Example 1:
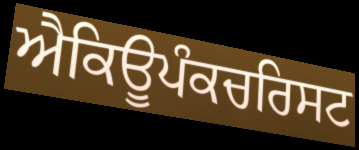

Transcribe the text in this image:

ਐਕਿਊਪੰਕਚਰਿਸਟ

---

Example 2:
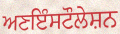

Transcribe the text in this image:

ਅਣਇੰਸਟੌਲੇਸ਼ਨ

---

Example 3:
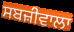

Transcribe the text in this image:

ਸਬਜ਼ੀਵਾਲਾ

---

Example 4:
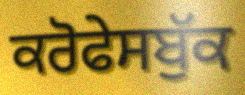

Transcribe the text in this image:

ਕਰੋਫੇਸਬੁੱਕ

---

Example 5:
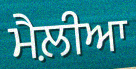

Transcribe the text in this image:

ਮੈਲ਼ੀਆ